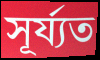
সূৰ্য্যত